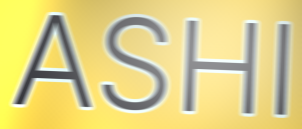
ASHI